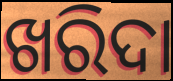
ଖରିଦା